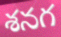
శనగ